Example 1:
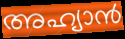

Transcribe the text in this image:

അഹ്യാൻ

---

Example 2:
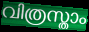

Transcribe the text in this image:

വിത്രസ്താം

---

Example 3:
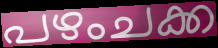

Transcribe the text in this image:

പഴംചക്ക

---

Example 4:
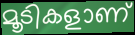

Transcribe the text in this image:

മൂടികളാണ്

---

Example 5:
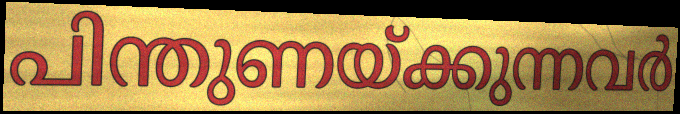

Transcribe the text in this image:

പിന്തുണയ്ക്കുന്നവർ